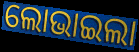
ଲୋଭାଇଲା